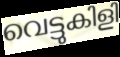
വെട്ടുകിളി